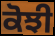
ਕੋਝੀ